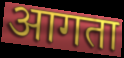
आगता